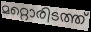
മറ്റൊരിടത്ത്